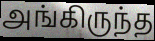
அங்கிருந்த